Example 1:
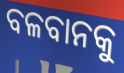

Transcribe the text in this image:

ବଳବାନକୁ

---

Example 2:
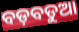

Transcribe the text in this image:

ବଡ଼ବଡୁଆ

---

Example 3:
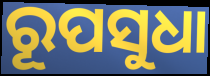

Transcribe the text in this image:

ରୂପସୁଧା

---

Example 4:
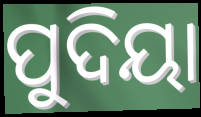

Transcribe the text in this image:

ପୁଦିୟା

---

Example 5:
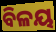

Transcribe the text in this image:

ବିଳୟ